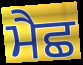
ਮੈਛ